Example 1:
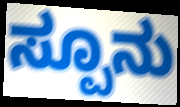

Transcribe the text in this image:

ಸ್ಪೂನು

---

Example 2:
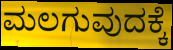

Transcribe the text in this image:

ಮಲಗುವುದಕ್ಕೆ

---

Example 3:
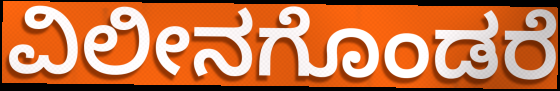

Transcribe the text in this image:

ವಿಲೀನಗೊಂಡರೆ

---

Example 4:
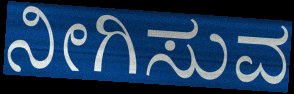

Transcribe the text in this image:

ನೀಗಿಸುವ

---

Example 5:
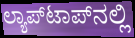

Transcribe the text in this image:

ಲ್ಯಾಪ್‌ಟಾಪ್‌ನಲ್ಲಿ